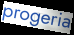
progeria